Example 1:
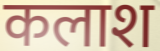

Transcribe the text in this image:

कलाश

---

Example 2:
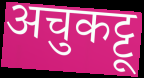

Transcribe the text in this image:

अचुकट्टू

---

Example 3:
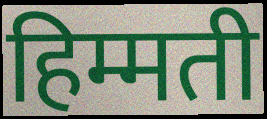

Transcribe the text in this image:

हिम्मती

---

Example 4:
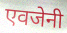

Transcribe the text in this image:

एवजेनी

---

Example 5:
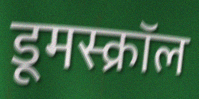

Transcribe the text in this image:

डूमस्क्रॉल